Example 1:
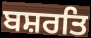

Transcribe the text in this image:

ਬਸ਼ਰਤਿ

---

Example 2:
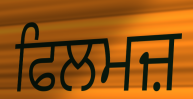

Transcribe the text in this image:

ਫਿਲਮਜ਼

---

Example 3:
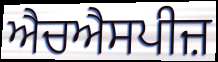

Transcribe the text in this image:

ਐਚਐਸਪੀਜ਼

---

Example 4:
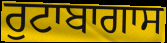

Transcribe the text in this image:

ਰੁਟਾਬਾਗਾਸ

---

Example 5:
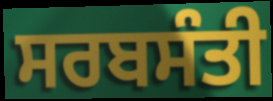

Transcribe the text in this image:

ਸਰਬਸੰਤੀ